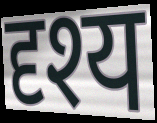
दृश्‍य